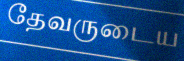
தேவருடைய